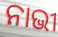
ନାଭୀ